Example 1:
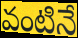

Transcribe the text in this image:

వంటినే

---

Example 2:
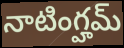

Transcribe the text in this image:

నాటింగ్హమ్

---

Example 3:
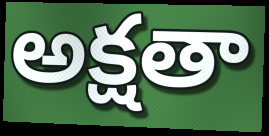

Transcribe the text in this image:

అక్షతా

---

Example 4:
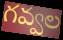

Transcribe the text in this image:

గవ్వల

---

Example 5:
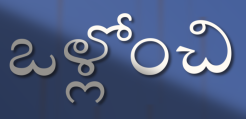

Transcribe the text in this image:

ఒళ్లోంచి